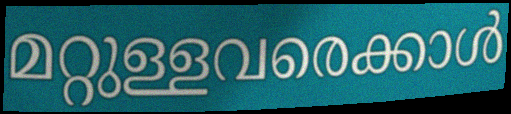
മറ്റുള്ളവരെക്കാൾ